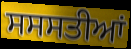
ਸਸਸਤੀਆਂ